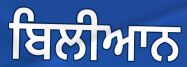
ਬਿਲੀਆਨ